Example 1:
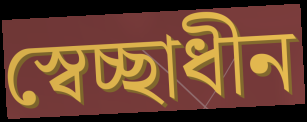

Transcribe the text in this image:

স্বেচ্ছাধীন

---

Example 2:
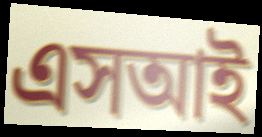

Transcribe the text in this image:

এসআই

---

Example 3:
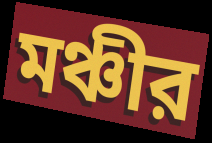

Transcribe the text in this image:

মঞ্চীর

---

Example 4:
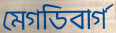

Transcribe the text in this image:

মেগডিবার্গ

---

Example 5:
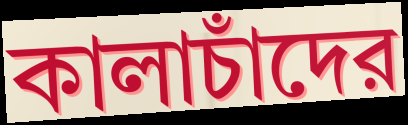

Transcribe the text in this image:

কালাচাঁদের